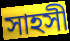
সাহসী